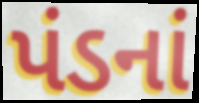
પંડનાં